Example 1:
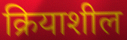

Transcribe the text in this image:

क्रियाशील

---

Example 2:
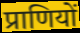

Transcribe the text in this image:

प्राणियों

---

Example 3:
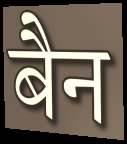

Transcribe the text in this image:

बैन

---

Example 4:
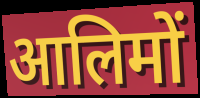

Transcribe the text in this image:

आलिमों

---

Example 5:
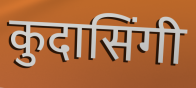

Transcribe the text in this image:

कुदासिंगी